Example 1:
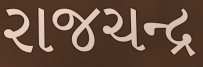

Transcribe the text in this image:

રાજચન્દ્ર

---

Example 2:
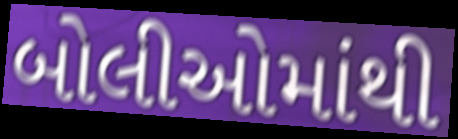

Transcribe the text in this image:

બોલીઓમાંથી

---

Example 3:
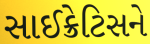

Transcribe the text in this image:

સાઈક્રેટિસને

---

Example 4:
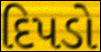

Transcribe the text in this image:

દિપડો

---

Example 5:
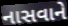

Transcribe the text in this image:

નાસવાને